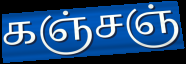
கஞ்சஞ்